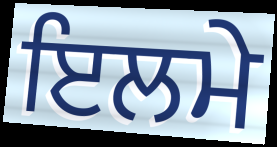
ਇਲਮੇ